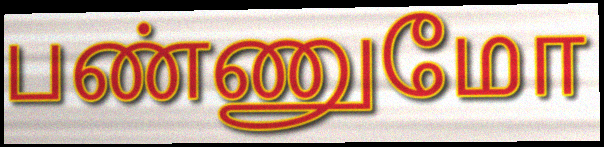
பண்ணுமோ